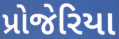
પ્રોજેરિયા